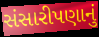
સંસારીપણાનું